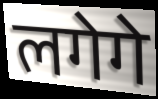
लगेगे